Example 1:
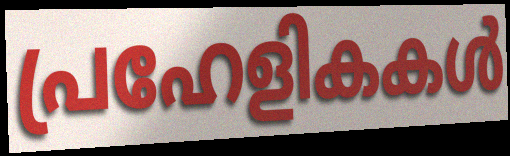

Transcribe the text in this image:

പ്രഹേളികകൾ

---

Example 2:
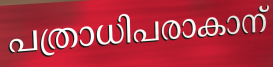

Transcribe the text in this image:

പത്രാധിപരാകാന്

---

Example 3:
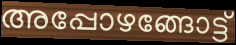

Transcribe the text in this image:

അപ്പോഴങ്ങോട്ട്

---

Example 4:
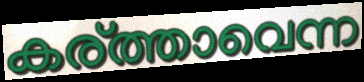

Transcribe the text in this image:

കര്ത്താവെന്ന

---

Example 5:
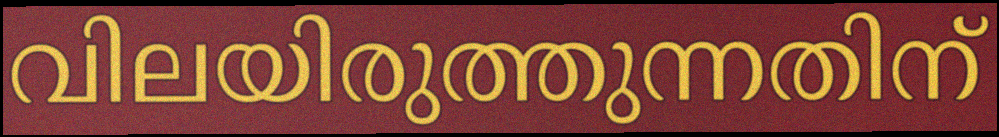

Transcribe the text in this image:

വിലയിരുത്തുന്നതിന്